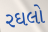
રઘલો